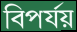
বিপর্যয়